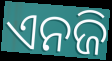
ଏନଜି